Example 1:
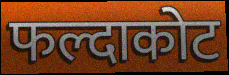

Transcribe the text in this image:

फल्दाकोट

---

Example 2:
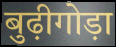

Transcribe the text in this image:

बुढ़ीगोड़ा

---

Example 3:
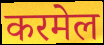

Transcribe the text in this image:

करमेल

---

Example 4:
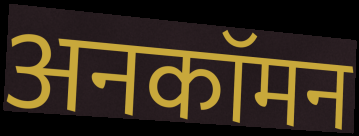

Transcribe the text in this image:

अनकॉमन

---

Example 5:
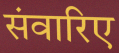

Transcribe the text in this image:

संवारिए